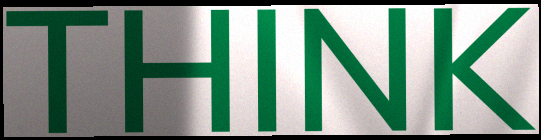
THINK